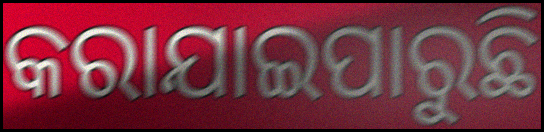
କରାଯାଇପାରୁଛି